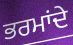
ਭਰਮਾਂਦੇ